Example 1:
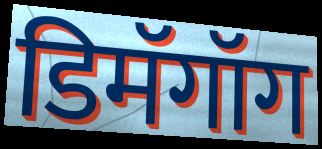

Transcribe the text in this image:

डिमॅगॉग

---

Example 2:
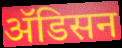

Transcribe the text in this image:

ॲडिसन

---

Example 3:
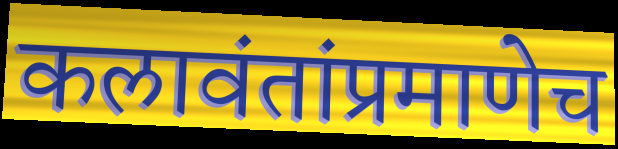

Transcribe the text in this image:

कलावंतांप्रमाणेच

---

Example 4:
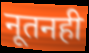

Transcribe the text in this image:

नूतनही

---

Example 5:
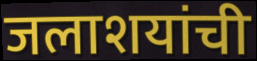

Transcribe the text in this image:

जलाशयांची